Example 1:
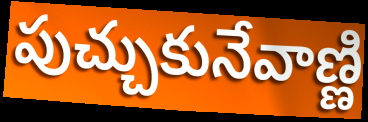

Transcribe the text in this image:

పుచ్చుకునేవాణ్ణి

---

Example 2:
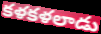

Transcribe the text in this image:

కళకళలాడు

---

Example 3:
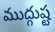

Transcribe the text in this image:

ముద్గుష్ట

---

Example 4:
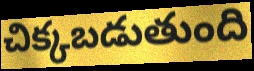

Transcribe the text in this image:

చిక్కబడుతుంది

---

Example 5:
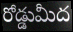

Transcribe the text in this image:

రోడ్డుమీద